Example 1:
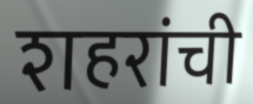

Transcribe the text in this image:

शहरांची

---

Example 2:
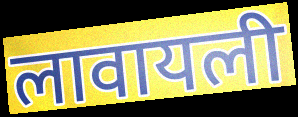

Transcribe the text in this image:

लावायली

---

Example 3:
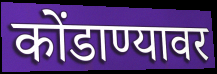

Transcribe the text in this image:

कोंडाण्यावर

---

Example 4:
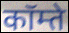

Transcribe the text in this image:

कॉम्ते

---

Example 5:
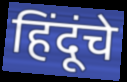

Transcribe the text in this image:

हिंदूंचे